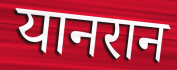
यानरान